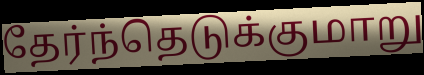
தேர்ந்தெடுக்குமாறு